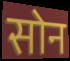
सोन